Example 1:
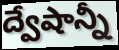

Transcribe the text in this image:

ద్వేషాన్నీ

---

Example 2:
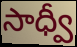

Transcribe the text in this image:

సాధ్వీ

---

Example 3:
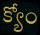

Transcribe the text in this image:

క్యోం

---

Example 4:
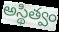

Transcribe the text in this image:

అస్థిత్వం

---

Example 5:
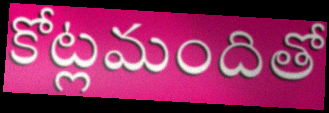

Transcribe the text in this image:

కోట్లమందితో